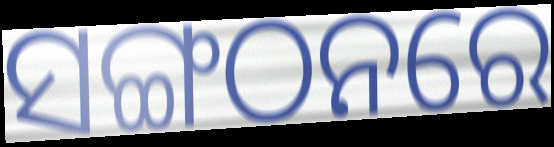
ସଙ୍ଗଠନରେ